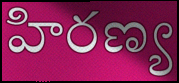
హిరణ్య